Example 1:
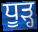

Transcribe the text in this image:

ਧੂੜ੍ਹ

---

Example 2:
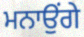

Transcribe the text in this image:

ਮਨਾਉਂਗੇ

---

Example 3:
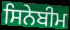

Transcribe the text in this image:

ਸਿਨੇਬੀਮ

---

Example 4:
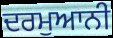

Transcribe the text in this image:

ਦਰਮੁਆਨੀ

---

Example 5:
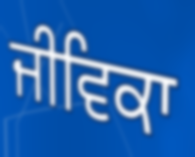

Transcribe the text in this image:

ਜੀਵਿਕਾ